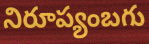
నిరూప్యంబగు